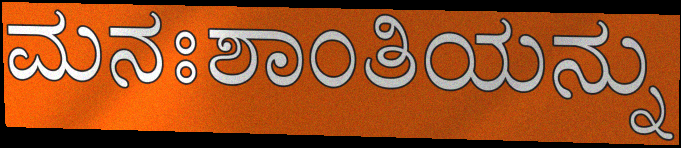
ಮನಃಶಾಂತಿಯನ್ನು